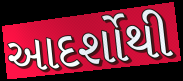
આદર્શોથી